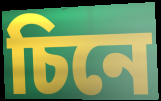
চিনে